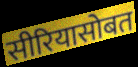
सीरियासोबत